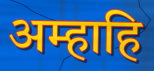
अम्हाहि